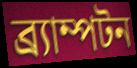
ব্র্যাম্পটন